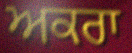
ਅਕਰਾ